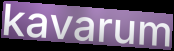
kavarum